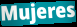
Mujeres